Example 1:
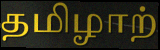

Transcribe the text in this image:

தமிழாற்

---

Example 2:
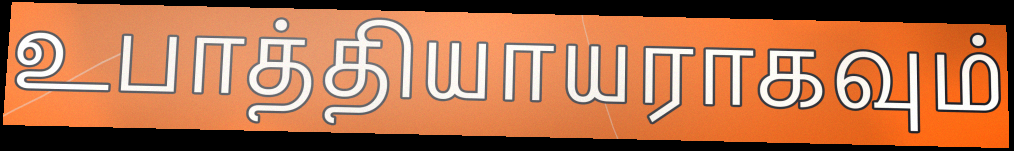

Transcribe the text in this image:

உபாத்தியாயராகவும்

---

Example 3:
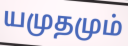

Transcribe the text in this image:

யமுதமும்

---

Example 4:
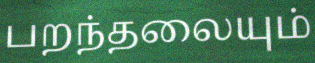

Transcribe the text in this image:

பறந்தலையும்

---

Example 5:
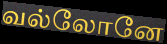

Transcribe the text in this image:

வல்லோனே